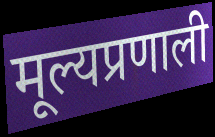
मूल्यप्रणाली